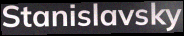
Stanislavsky